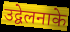
उद्वेलनाके